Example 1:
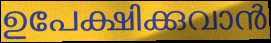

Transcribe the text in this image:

ഉപേക്ഷിക്കുവാൻ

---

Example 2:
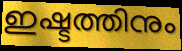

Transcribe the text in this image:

ഇഷ്ടത്തിനും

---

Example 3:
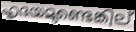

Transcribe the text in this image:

ഹൃദയമുണ്ടെങ്കില്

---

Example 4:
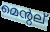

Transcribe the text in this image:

മെന്റല്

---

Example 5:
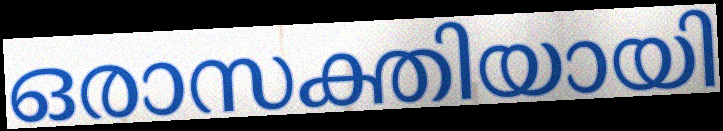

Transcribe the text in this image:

ഒരാസക്തിയായി